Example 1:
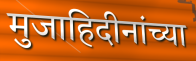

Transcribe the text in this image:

मुजाहिदीनांच्या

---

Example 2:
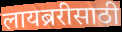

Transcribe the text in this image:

लायब्ररीसाठी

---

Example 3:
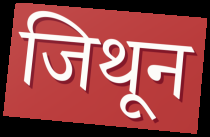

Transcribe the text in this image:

जिथून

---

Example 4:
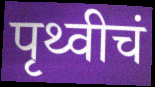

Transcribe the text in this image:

पृथ्वीचं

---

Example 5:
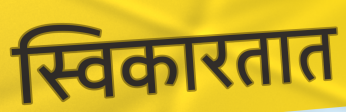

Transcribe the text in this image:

स्विकारतात